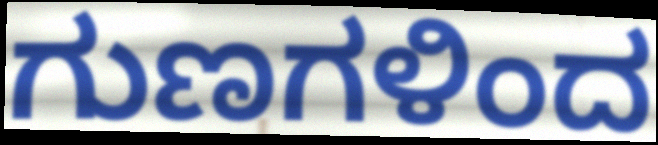
ಗುಣಗಳಿಂದ